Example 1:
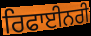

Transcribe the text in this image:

ਰਿਫਾਈਨਰੀ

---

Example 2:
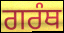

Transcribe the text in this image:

ਗਰੰਥ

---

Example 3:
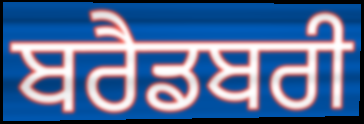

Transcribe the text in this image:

ਬਰੈਡਬਰੀ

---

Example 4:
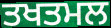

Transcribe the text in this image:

ਤਖਤਮਲ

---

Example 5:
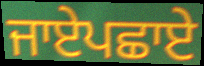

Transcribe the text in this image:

ਜਾਏਪਛਾਏ